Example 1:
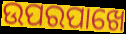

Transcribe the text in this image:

ଉପରପାଖେ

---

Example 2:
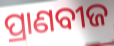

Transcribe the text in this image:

ପ୍ରାଣବୀଜ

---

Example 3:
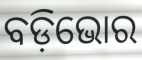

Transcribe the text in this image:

ବଡ଼ିଭୋର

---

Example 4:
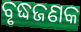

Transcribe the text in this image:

ବୃଦ୍ଧଜଣକ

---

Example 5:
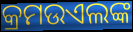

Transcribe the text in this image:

କ୍ରମଉଏଲଙ୍କ